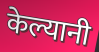
केल्यानी